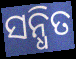
ସନ୍ଧିତ